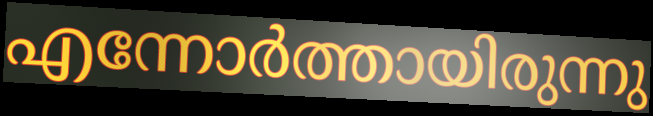
എന്നോർത്തായിരുന്നു